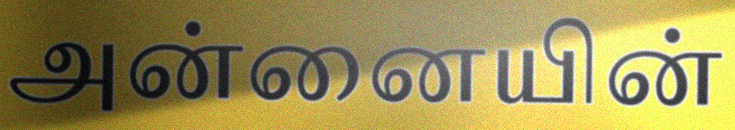
அன்னையின்